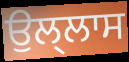
ਉਲ੍ਲਾਸ